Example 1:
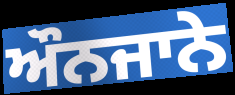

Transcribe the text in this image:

ਔਨਜਾਨੇ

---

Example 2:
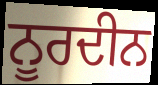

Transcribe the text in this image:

ਨੂਰਦੀਨ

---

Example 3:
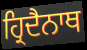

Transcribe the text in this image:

ਹ੍ਰਿਦੈਨਾਥ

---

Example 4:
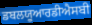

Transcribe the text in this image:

ਡਬਲਯੂਆਰਡੀਐਸਬੀ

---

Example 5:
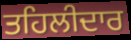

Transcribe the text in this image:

ਤਹਿਲੀਦਾਰ